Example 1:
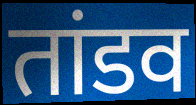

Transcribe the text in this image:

तांडव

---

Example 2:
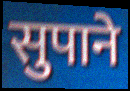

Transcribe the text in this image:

सुपाने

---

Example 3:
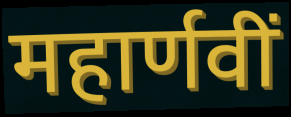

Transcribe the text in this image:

महार्णवीं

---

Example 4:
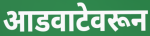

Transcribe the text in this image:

आडवाटेवरून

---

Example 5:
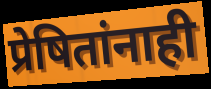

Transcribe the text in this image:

प्रेषितांनाही